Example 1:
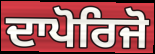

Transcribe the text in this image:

ਦਾਪੋਰਿਜੋ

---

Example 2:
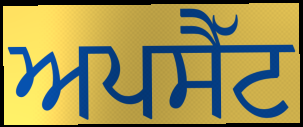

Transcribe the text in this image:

ਅਪਸੈੱਟ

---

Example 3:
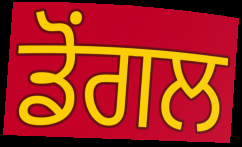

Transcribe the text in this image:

ਡੋਂਗਲ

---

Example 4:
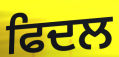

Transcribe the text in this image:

ਫਿਦਲ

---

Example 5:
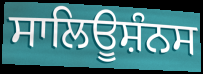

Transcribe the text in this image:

ਸਾਲਿਊਸ਼ੰਨਸ